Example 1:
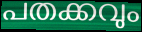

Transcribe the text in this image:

പതക്കവും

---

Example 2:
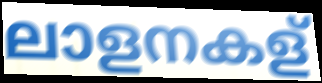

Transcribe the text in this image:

ലാളനകള്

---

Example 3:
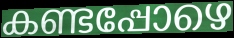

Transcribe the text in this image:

കണ്ടപ്പോഴെ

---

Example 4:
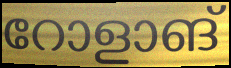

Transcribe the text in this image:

റോളാങ്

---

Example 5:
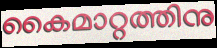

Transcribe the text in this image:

കൈമാറ്റത്തിനു